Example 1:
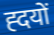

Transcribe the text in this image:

ह्दयों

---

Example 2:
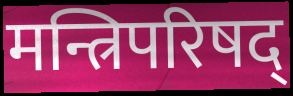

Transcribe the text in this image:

मन्त्रिपरिषद्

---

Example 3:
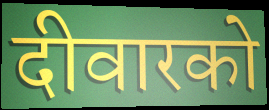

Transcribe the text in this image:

दीवारको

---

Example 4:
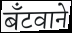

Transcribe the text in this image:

बँटवाने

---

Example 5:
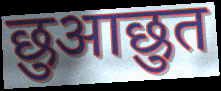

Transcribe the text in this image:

छुआछुत